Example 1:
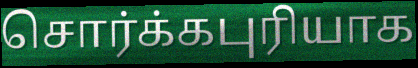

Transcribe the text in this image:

சொர்க்கபுரியாக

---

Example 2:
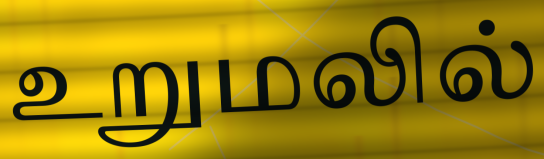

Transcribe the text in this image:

உறுமலில்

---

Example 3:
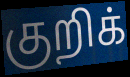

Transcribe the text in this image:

குறிக்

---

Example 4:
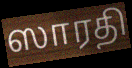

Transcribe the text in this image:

ஸாரதி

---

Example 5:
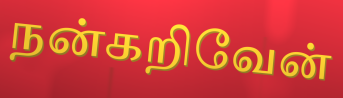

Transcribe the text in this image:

நன்கறிவேன்